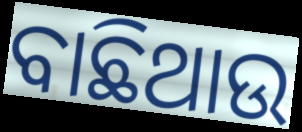
ବାଛିଥାଉ